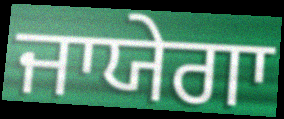
ਜਾਯੇਗਾ